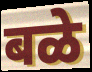
बळे